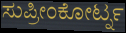
ಸುಪ್ರೀಂಕೋರ್ಟ್ನ